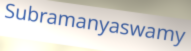
Subramanyaswamy